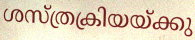
ശസ്ത്രക്രിയയ്ക്കു